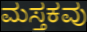
ಮಸ್ತಕವು